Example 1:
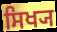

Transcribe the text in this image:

ਸਿਖ੍ਯ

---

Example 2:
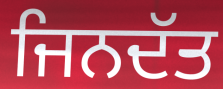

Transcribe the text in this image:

ਜਿਨਦੱਤ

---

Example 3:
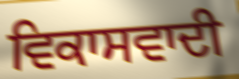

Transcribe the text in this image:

ਵਿਕਾਸਵਾਦੀ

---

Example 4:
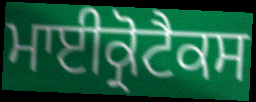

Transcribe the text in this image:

ਮਾਈਕ੍ਰੋਟੈਕਸ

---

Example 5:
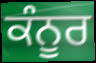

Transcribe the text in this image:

ਕੰਨੂਰ